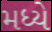
મધ્યે